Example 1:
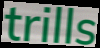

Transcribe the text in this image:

trills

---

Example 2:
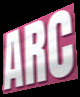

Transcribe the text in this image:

ARC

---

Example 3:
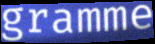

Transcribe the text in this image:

gramme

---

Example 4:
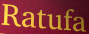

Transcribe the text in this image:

Ratufa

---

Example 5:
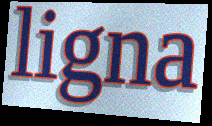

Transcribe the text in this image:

ligna